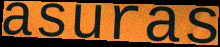
asuras